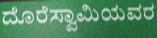
ದೊರೆಸ್ವಾಮಿಯವರ